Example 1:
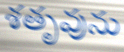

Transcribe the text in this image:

శతృవును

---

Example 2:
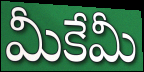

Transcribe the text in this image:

మీకేమీ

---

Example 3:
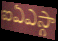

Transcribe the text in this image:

ఐఏఎస్గా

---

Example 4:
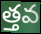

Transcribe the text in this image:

త్తవ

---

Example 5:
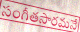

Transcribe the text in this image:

సంగీతసారమనే